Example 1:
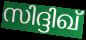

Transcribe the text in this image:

സിദ്ദിഖ്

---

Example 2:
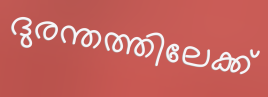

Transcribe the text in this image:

ദുരന്തത്തിലേക്ക്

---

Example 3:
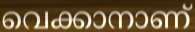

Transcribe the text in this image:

വെക്കാനാണ്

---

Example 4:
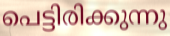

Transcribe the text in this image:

പെട്ടിരിക്കുന്നു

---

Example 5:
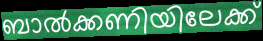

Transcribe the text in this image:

ബാൽക്കണിയിലേക്ക്